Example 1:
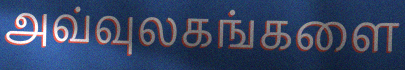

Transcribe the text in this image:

அவ்வுலகங்களை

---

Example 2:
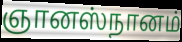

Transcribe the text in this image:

ஞானஸ்நானம்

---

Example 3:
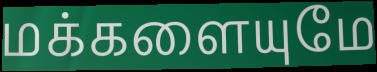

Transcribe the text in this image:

மக்களையுமே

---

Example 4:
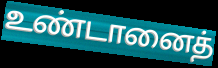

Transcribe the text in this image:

உண்டானைத்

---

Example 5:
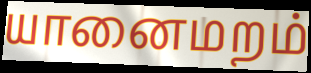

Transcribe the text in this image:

யானைமறம்